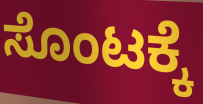
ಸೊಂಟಕ್ಕೆ